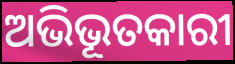
ଅଭିଭୂତକାରୀ